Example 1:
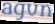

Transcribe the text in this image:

agun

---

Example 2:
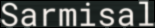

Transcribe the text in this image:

Sarmisal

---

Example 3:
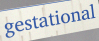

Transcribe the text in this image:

gestational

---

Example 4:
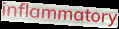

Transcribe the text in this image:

inflammatory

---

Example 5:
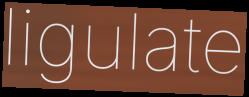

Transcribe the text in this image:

ligulate